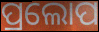
ପ୍ରଲୋପ